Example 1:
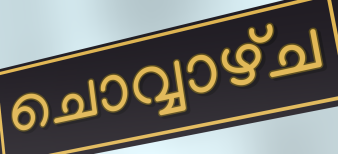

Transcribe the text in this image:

ചൊവ്വാഴ്‌ച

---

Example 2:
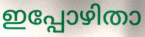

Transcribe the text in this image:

ഇപ്പോഴിതാ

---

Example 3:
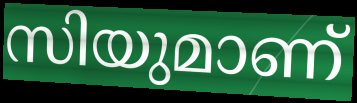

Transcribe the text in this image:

സിയുമാണ്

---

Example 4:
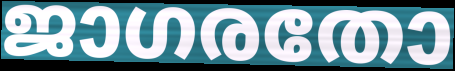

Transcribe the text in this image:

ജാഗരതോ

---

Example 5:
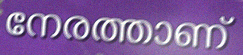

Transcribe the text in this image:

നേരത്താണ്